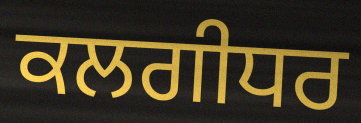
ਕਲਗੀਧਰ